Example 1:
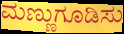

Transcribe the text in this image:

ಮಣ್ಣುಗೂಡಿಸು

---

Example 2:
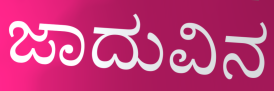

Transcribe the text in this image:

ಜಾದುವಿನ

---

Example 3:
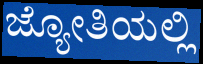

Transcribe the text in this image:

ಜ್ಯೋತಿಯಲ್ಲಿ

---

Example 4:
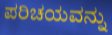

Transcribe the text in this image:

ಪರಿಚಯವನ್ನು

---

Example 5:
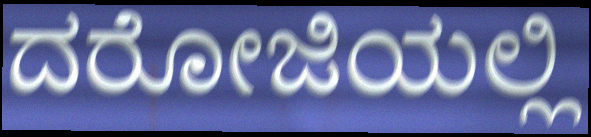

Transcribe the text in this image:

ದರೋಜಿಯಲ್ಲಿ